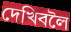
দেখিবলৈ